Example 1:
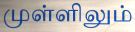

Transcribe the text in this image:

முள்ளிலும்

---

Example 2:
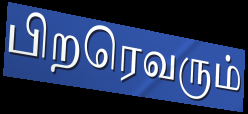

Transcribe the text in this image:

பிறரெவரும்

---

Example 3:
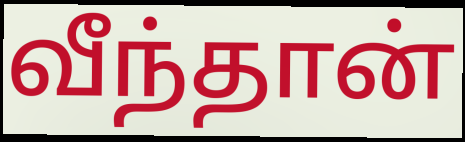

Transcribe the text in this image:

வீந்தான்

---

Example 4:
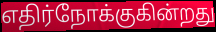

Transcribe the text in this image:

எதிர்நோக்குகின்றது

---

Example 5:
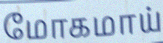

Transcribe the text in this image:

மோகமாய்